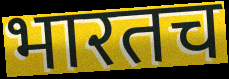
भारतच